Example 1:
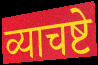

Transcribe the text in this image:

व्याचष्टे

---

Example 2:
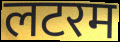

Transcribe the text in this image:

लटरम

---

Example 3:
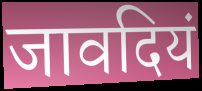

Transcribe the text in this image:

जावदियं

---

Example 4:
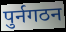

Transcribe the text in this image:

पुर्नगठन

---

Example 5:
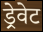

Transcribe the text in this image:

ड्रेवेट